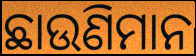
ଛାଉଣିମାନ